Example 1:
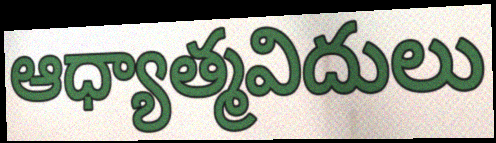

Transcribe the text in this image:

ఆధ్యాత్మవిదులు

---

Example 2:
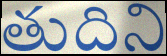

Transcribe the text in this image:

తుదిని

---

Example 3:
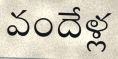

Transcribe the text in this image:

వందేళ్ల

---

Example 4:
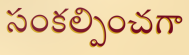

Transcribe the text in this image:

సంకల్పించగా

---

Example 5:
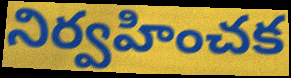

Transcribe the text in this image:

నిర్వహించక